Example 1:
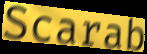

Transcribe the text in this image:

Scarab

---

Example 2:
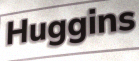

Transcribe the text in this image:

Huggins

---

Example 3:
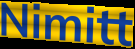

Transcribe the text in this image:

Nimitt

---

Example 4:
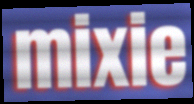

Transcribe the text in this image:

mixie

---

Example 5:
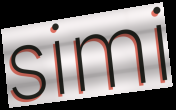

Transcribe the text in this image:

simi